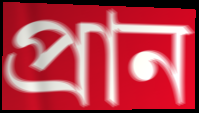
প্ৰান